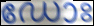
ഡോഃ